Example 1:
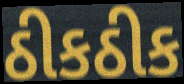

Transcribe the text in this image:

ઠીકઠીક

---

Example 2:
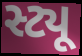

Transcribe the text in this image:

સ્ટ્યૂ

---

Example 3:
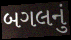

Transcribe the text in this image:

બગલનું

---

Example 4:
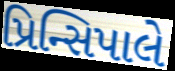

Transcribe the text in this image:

પ્રિન્સિપાલે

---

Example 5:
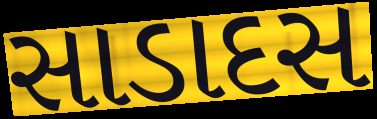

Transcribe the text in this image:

સાડાદસ